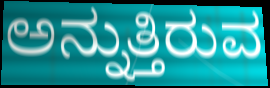
ಅನ್ನುತ್ತಿರುವ